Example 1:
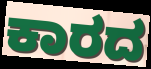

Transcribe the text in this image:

ಕಾರದ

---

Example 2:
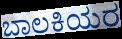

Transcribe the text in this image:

ಬಾಲಕಿಯರ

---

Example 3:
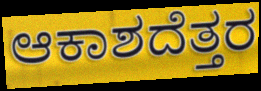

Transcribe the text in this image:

ಆಕಾಶದೆತ್ತರ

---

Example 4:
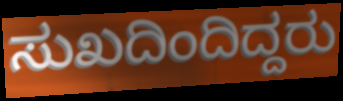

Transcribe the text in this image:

ಸುಖದಿಂದಿದ್ದರು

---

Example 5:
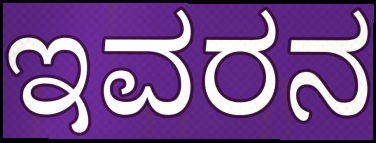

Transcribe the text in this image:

ಇವರನ